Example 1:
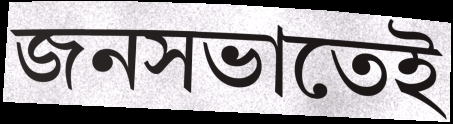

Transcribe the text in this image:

জনসভাতেই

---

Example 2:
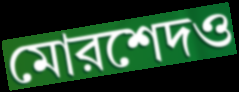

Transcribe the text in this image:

মোরশেদও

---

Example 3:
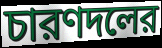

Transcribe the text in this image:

চারণদলের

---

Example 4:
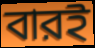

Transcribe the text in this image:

বারই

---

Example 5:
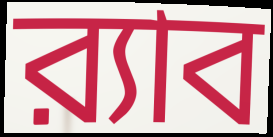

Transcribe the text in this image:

র‍্যাব